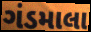
ગંડમાલા